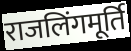
राजलिंगमूर्ति